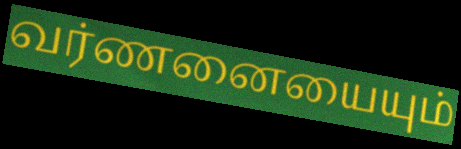
வர்ணனையையும்